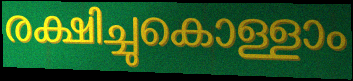
രക്ഷിച്ചുകൊള്ളാം